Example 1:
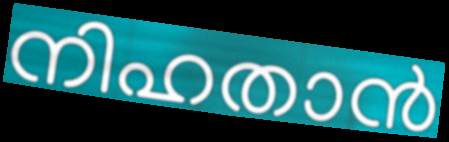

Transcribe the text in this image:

നിഹതാൻ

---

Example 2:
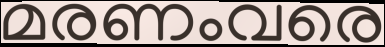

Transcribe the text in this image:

മരണംവരെ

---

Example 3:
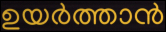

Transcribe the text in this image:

ഉയർത്താൻ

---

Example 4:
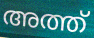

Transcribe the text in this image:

അത്ത്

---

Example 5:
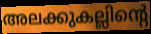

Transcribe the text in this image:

അലക്കുകല്ലിന്റെ